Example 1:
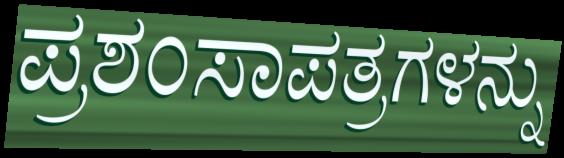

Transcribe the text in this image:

ಪ್ರಶಂಸಾಪತ್ರಗಳನ್ನು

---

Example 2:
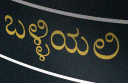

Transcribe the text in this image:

ಬಳ್ಳಿಯಲಿ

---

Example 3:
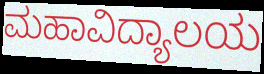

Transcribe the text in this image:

ಮಹಾವಿದ್ಯಾಲಯ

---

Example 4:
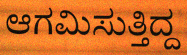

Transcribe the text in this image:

ಆಗಮಿಸುತ್ತಿದ್ದ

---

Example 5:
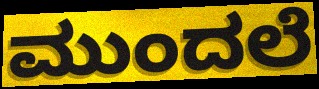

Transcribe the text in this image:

ಮುಂದಲೆ